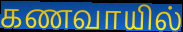
கணவாயில்